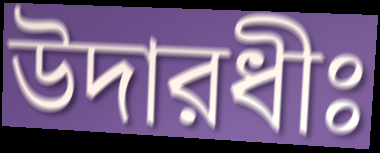
উদারধীঃ